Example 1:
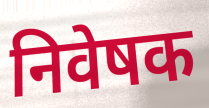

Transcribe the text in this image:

निवेषक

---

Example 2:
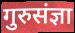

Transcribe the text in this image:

गुरुसंज्ञा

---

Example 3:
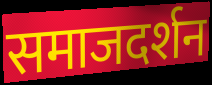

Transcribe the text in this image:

समाजदर्शन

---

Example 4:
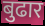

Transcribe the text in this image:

बुढार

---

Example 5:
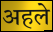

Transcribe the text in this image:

अहले